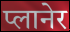
प्लानेर